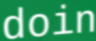
doin